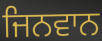
ਜਿਨਵਾਨ